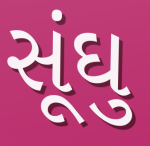
સૂંઘુ